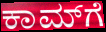
ಕಾಮ್‌ಗೆ